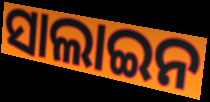
ସାଲାଇନ